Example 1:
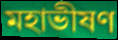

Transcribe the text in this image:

মহাভীষণ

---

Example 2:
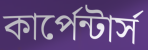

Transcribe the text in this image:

কার্পেন্টার্স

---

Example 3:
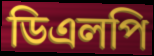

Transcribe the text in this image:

ডিএলপি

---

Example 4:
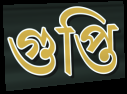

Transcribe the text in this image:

গুপ্তি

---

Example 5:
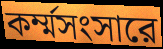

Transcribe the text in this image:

কর্ম্মসংসারে